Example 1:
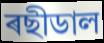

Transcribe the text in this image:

ৰছীডাল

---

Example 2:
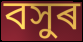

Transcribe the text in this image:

বসুৰ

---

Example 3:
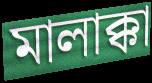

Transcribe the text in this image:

মালাক্কা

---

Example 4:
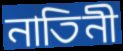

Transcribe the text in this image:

নাতিনী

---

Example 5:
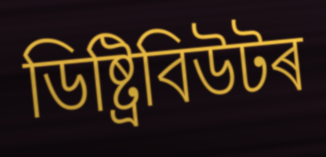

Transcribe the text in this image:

ডিষ্ট্ৰিবিউটৰ